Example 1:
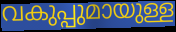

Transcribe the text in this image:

വകുപ്പുമായുള്ള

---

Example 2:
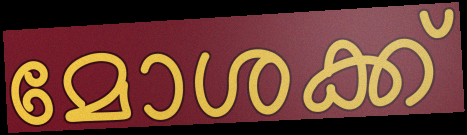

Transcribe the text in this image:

മോശക്ക്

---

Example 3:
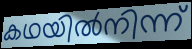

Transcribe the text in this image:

കഥയിൽനിന്ന്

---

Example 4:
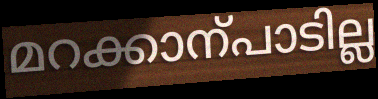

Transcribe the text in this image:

മറക്കാന്പാടില്ല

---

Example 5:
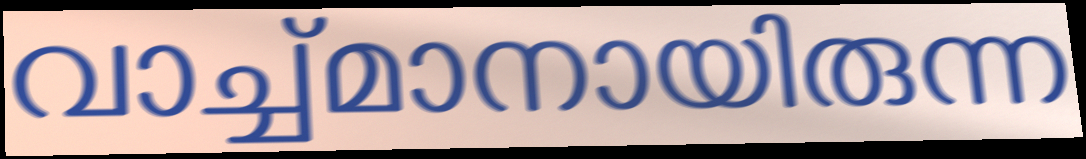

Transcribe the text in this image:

വാച്ച്മാനായിരുന്ന